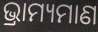
ଭ୍ରାମ୍ୟମାଣ